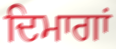
ਦਿਮਾਗਾਂ